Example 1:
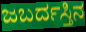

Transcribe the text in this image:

ಜಬರ್ದಸ್ತಿನ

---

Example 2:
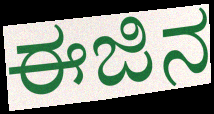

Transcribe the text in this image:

ಈಜಿನ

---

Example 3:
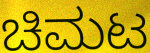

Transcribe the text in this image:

ಚಿಮಟ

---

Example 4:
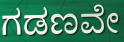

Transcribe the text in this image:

ಗಡಣವೇ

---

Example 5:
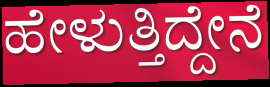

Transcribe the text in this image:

ಹೇಳುತ್ತಿದ್ದೇನೆ